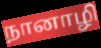
நானாழி